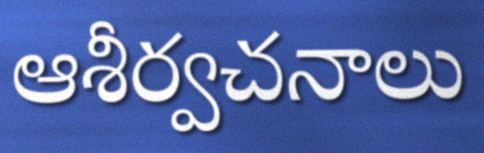
ఆశీర్వచనాలు